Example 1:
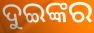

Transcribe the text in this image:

ଦୁଇଙ୍କର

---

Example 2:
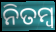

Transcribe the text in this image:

ନିତମ୍ବ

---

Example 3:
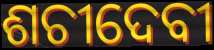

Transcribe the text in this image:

ଶଚୀଦେବୀ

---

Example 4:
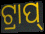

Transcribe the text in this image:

ଟ୍ରାପ୍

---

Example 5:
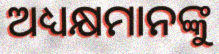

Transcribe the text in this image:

ଅଧ୍ୟକ୍ଷମାନଙ୍କୁ